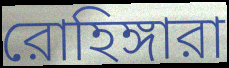
রোহিঙ্গারা